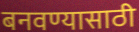
बनवण्यासाठी